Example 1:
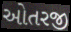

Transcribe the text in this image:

ઓતરજી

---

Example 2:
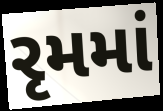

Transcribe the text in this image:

રૃમમાં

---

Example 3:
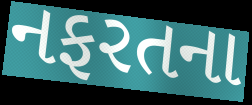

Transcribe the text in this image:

નફરતના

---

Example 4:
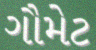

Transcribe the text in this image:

ગૌમેટ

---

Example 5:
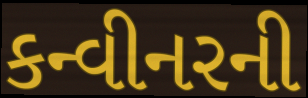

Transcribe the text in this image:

કન્વીનરની